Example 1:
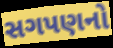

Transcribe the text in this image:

સગપણનો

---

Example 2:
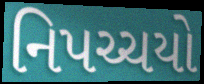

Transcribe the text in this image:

નિપચ્ચયો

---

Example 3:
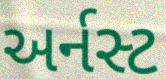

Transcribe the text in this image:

અર્નસ્ટ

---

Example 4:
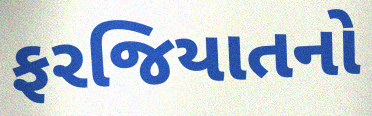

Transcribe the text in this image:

ફરજિયાતનો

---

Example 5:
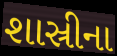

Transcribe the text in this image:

શાસ્રીના